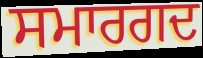
ਸਮਾਰਗਦ